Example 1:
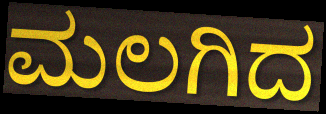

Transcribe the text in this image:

ಮಲಗಿದ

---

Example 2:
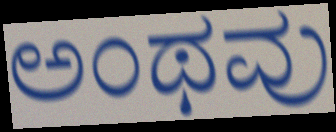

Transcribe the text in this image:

ಅಂಥವು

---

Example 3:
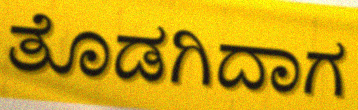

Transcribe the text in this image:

ತೊಡಗಿದಾಗ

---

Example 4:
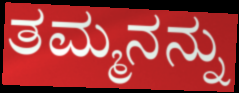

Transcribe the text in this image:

ತಮ್ಮನನ್ನು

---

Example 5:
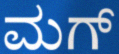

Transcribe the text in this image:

ಮಗ್